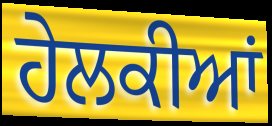
ਹੇਲਕੀਆਂ